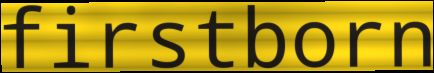
firstborn